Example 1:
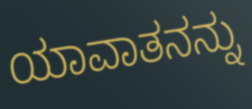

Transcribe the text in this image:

ಯಾವಾತನನ್ನು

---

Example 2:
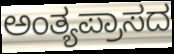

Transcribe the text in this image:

ಅಂತ್ಯಪ್ರಾಸದ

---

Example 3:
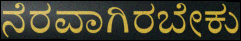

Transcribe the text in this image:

ನೆರವಾಗಿರಬೇಕು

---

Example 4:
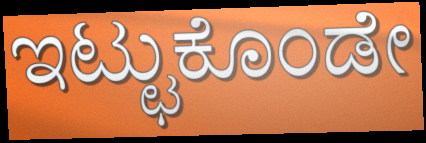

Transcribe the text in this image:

ಇಟ್ಟುಕೊಂಡೇ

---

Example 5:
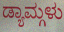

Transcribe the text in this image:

ಡ್ಯಾಮ್ಗಳು